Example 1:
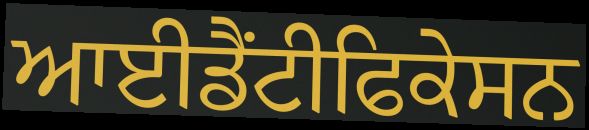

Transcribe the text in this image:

ਆਈਡੈਂਟੀਫਿਕੇਸਨ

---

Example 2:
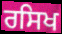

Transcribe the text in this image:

ਰਸਿਖ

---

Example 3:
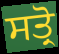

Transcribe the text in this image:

ਸਤ੍ਰੋ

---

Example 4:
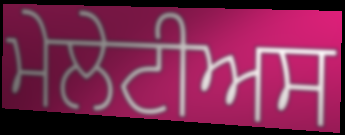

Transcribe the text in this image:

ਮੇਲੇਟੀਅਸ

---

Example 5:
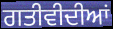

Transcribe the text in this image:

ਗਤੀਵੀਦੀਆਂ